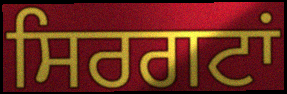
ਸਿਰਗਟਾਂ